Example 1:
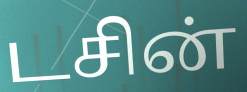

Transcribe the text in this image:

டசின்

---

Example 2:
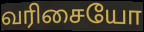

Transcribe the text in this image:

வரிசையோ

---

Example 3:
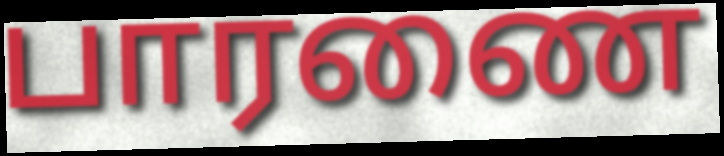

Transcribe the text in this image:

பாரணை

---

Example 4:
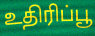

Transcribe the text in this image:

உதிரிப்பூ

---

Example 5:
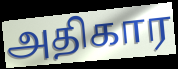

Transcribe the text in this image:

அதிகார